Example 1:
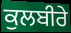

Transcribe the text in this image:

ਕੁਲਬੀਰੇ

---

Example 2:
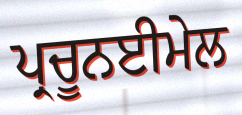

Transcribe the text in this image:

ਪ੍ਰਚੂਨਈਮੇਲ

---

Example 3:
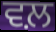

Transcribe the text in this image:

ਵਲ਼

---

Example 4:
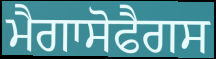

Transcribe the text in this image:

ਮੈਗਾਸੋਫੈਗਸ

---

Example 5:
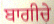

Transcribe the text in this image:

ਬਾਗੀਚੇ